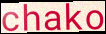
chako